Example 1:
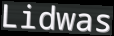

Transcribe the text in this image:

Lidwas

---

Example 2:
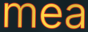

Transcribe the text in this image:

mea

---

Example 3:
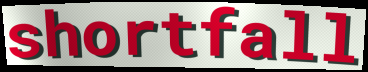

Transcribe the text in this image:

shortfall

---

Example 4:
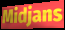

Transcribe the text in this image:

Midjans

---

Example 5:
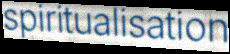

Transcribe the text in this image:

spiritualisation